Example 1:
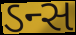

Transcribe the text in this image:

ડન્સ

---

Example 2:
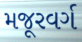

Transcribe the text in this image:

મજૂરવર્ગ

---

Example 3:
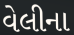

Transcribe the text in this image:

વેલીના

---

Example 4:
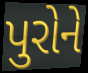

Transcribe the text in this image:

પુરોને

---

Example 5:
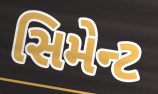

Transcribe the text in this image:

સિમેન્ટ